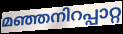
മഞ്ഞനിറപ്പാറ്റ